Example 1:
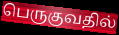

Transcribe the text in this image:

பெருகுவதில்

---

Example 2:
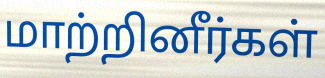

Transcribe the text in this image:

மாற்றினீர்கள்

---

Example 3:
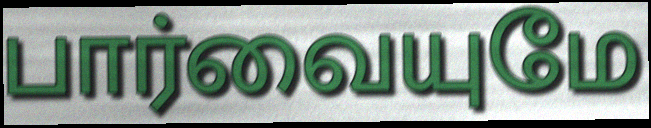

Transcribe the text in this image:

பார்வையுமே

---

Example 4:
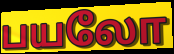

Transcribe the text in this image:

பயலோ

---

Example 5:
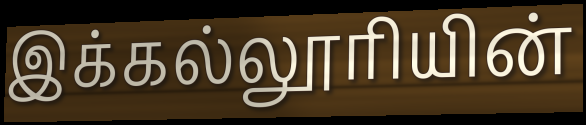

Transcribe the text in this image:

இக்கல்லூரியின்